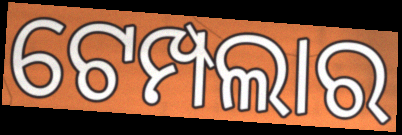
ଟେମ୍ପଲାର